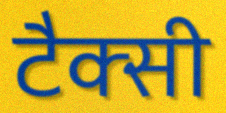
टैक्‍सी